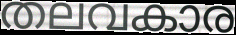
തലവകാര